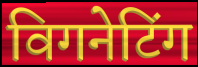
विगनेटिंग